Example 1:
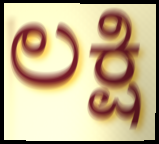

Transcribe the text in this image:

ಲಕ್ಷಿ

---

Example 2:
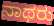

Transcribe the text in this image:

ನಾಥರು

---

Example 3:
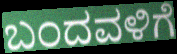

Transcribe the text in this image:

ಬಂದವಳಿಗೆ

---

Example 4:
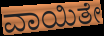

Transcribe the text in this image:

ವಾಯಿತೇ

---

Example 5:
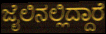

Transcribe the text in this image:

ಜೈಲಿನಲ್ಲಿದ್ದಾರೆ